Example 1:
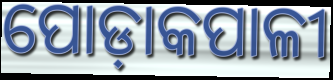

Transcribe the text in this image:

ପୋଡ଼ାକପାଳୀ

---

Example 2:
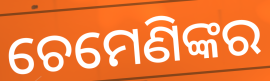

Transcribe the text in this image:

ଚେମେଣିଙ୍କର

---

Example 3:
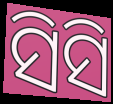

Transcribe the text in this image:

ସିସି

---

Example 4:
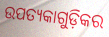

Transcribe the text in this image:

ଉପତ୍ୟକାଗୁଡ଼ିକର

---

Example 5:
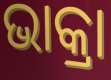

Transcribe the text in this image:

ଭାକ୍ରା